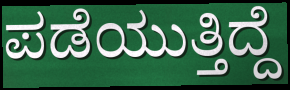
ಪಡೆಯುತ್ತಿದ್ದೆ